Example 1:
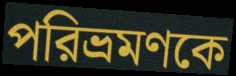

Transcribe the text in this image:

পরিভ্রমণকে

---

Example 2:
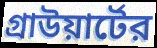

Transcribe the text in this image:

গ্রাউয়ার্টের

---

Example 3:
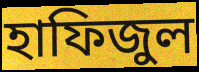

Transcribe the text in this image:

হাফিজুল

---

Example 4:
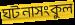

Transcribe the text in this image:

ঘটনাসংকুল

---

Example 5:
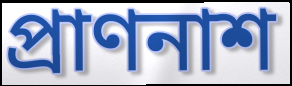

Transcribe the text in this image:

প্রাণনাশ